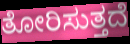
ತೋರಿಸುತ್ತದೆ